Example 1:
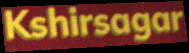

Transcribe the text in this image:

Kshirsagar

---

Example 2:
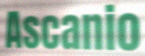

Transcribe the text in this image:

Ascanio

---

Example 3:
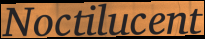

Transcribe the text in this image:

Noctilucent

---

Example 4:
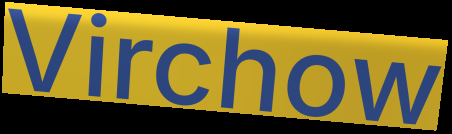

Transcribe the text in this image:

Virchow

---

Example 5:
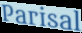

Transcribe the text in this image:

Parisal